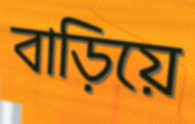
বাড়িয়ে